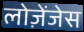
लोज़ेंजेस